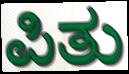
ಪಿತು